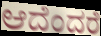
ಆದೆಂದರೆ